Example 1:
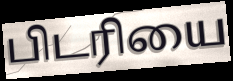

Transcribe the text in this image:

பிடரியை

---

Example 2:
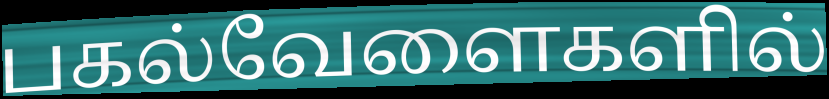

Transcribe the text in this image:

பகல்வேளைகளில்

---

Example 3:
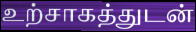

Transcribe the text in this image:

உற்சாகத்துடன்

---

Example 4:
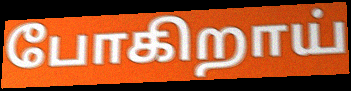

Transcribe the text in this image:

போகிறாய்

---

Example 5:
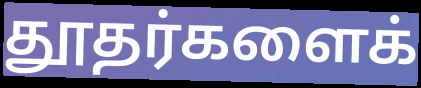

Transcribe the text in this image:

தூதர்களைக்